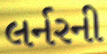
લર્નરની